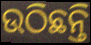
ଉଠିଛନ୍ତି